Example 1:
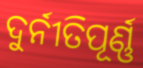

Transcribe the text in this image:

ଦୁର୍ନୀତିପୂର୍ଣ୍ଣ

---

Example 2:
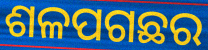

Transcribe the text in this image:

ଶଳପଗଛର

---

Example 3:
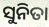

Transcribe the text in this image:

ସୁନିତା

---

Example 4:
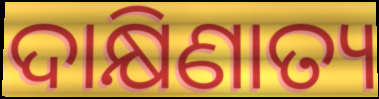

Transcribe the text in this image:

ଦାକ୍ଷିଣାତ୍ୟ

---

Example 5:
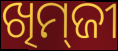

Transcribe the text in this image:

ଖିମ୍‌ଜୀ